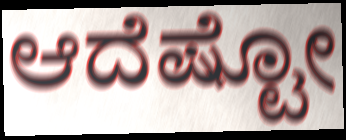
ಆದೆಷ್ಟೋ